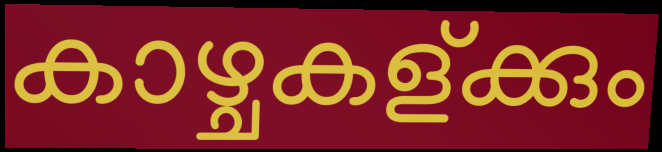
കാഴ്ചകള്ക്കും